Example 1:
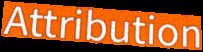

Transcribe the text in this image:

Attribution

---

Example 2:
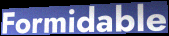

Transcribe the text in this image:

Formidable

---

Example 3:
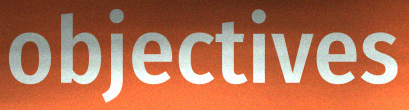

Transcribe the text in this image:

objectives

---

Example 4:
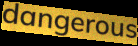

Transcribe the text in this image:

dangerous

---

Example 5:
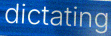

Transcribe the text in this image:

dictating